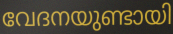
വേദനയുണ്ടായി